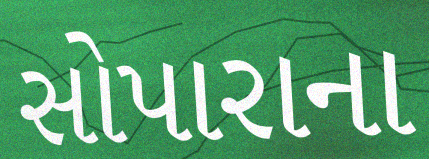
સોપારાના